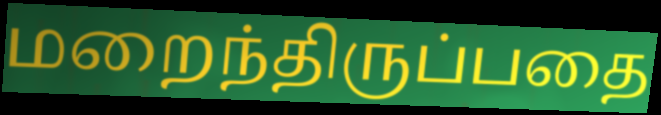
மறைந்திருப்பதை